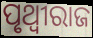
ପୃଥ୍ୱୀରାଜ